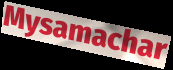
Mysamachar